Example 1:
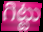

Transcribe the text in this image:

గిట్టు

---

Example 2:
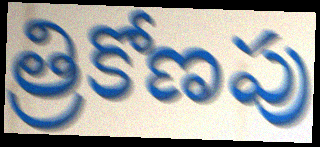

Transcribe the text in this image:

త్రికోణపు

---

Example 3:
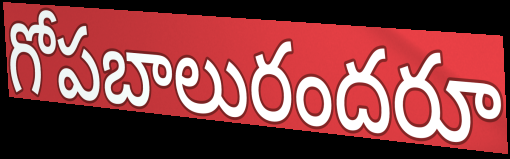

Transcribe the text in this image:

గోపబాలురందరూ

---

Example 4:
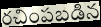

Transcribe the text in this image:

రచింపబడిన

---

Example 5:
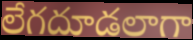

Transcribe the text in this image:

లేగదూడలాగా